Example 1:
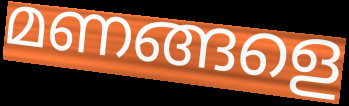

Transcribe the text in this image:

മണങ്ങളെ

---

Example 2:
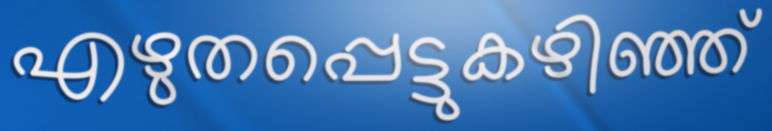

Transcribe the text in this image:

എഴുതപ്പെട്ടുകഴിഞ്ഞ്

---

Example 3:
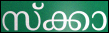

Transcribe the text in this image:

സ്ക്കാ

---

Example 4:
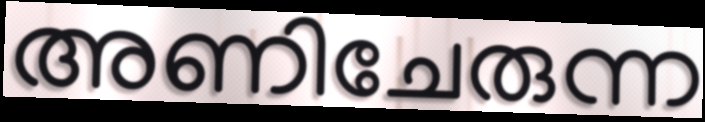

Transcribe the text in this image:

അണിചേരുന്ന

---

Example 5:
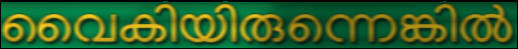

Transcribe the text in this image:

വൈകിയിരുന്നെങ്കിൽ